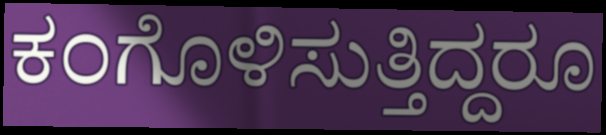
ಕಂಗೊಳಿಸುತ್ತಿದ್ದರೂ